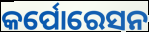
କର୍ପୋରେସନ